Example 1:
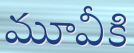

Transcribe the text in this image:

మూవీకి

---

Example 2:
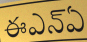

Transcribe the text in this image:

ఈఎన్ఏ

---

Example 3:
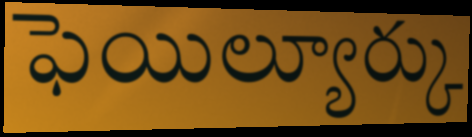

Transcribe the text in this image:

ఫెయిల్యూర్కు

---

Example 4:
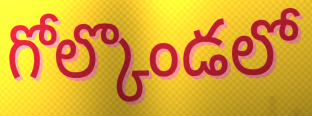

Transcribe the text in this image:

గోల్కొండలో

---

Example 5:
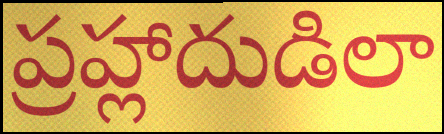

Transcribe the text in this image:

ప్రహ్లాదుడిలా